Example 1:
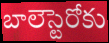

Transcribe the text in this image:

బాలెస్టెరోకు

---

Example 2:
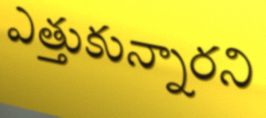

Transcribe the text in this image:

ఎత్తుకున్నారని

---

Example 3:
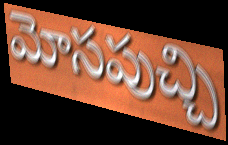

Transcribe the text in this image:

మోసపుచ్చి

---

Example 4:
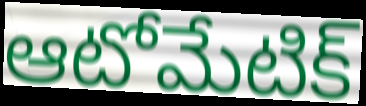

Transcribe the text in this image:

ఆటోమేటిక్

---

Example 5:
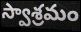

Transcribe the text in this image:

స్వాశ్రమం